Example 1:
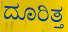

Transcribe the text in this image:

ದೂರಿತ್ತ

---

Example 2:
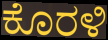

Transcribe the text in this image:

ಕೊರಳಿ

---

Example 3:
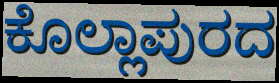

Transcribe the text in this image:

ಕೊಲ್ಲಾಪುರದ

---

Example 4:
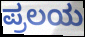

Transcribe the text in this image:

ಪ್ರಲಯ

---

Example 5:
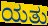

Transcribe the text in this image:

ಯತು